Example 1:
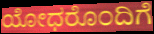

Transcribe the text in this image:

ಯೋಧರೊಂದಿಗೆ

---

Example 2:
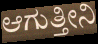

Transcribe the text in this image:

ಆಗುತ್ತೀನಿ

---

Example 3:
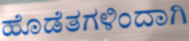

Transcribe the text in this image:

ಹೊಡೆತಗಳಿಂದಾಗಿ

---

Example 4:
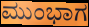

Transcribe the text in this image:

ಮುಂಭಾಗ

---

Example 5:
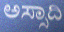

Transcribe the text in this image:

ಅಸ್ಸಾದಿ